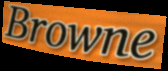
Browne